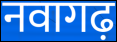
नवागढ़